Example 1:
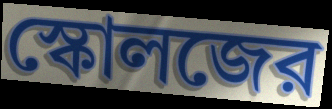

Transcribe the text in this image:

স্কোলজের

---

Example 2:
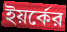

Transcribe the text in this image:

ইয়র্কের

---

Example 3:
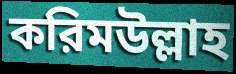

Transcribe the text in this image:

করিমউল্লাহ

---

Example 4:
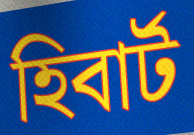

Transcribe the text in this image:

হিবার্ট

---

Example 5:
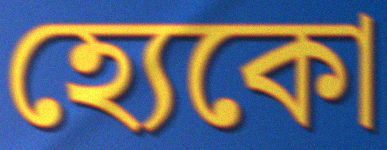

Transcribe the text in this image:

হ্যেকো